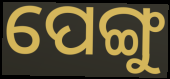
ପେଙ୍ଗୁ